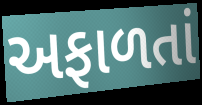
અફાળતાં